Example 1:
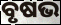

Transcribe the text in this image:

ବୃଷଭ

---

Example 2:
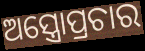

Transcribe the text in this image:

ଅସ୍ତ୍ରୋପ୍ରଚାର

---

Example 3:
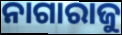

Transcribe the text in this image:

ନାଗାରାଜୁ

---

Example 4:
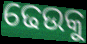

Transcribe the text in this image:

ଢେଉକୁ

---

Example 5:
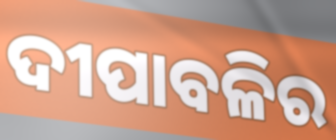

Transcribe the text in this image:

ଦୀପାବଳିର